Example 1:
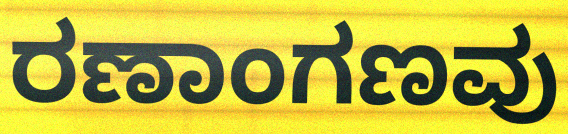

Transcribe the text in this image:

ರಣಾಂಗಣವು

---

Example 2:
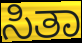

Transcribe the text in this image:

ಸಿತಾ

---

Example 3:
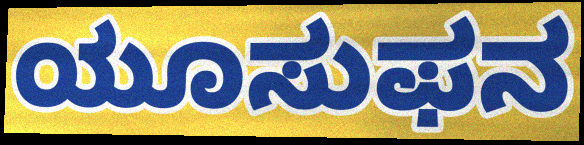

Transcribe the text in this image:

ಯೂಸುಫನ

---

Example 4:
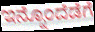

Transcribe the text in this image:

ಇನ್ನೊಂದೆಡೆಗೆ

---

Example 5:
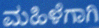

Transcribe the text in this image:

ಮಹಿಳೆಗಾಗಿ